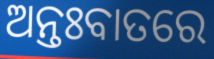
ଅନ୍ତଃବାତରେ